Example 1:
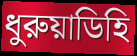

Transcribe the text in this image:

ধুরুয়াডিহি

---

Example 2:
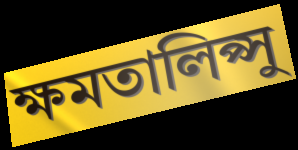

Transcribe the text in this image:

ক্ষমতালিপ্সু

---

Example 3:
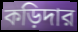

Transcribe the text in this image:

কড়িদার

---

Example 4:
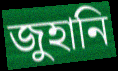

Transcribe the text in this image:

জুহানি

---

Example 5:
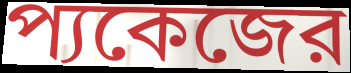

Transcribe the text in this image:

প্যকেজের